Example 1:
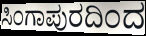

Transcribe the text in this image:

ಸಿಂಗಾಪುರದಿಂದ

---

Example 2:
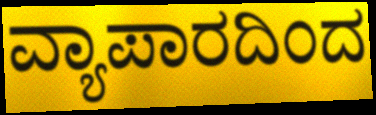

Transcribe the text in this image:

ವ್ಯಾಪಾರದಿಂದ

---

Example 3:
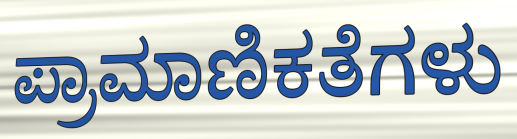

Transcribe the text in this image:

ಪ್ರಾಮಾಣಿಕತೆಗಳು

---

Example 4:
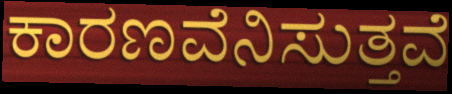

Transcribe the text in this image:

ಕಾರಣವೆನಿಸುತ್ತವೆ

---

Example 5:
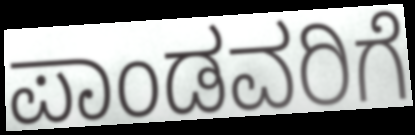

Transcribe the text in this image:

ಪಾಂಡವರಿಗೆ